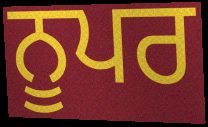
ਨੂਪਰ